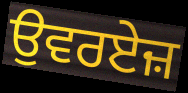
ਉਵਰਏਜ਼